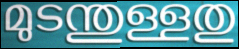
മുടന്തുള്ളതു